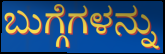
ಬುಗ್ಗೆಗಳನ್ನು